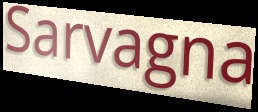
Sarvagna